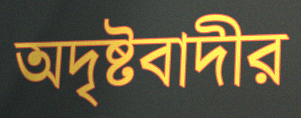
অদৃষ্টবাদীর